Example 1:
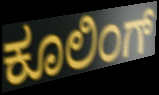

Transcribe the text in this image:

ಕೂಲಿಂಗ್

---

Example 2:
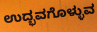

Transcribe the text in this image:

ಉದ್ಭವಗೊಳ್ಳುವ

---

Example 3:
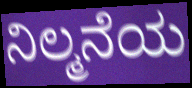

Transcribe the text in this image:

ನಿಲ್ಮನೆಯ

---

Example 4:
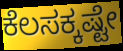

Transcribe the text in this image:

ಕೆಲಸಕ್ಕಷ್ಟೇ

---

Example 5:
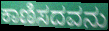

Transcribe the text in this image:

ಕಾಣಿಸದವನು